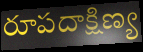
రూపదాక్షిణ్య